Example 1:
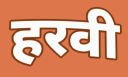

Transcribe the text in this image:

हरवी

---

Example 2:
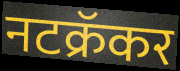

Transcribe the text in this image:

नटक्रॅकर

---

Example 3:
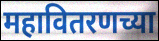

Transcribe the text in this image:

महावितरणच्या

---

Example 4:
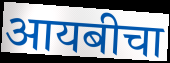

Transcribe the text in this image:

आयबीचा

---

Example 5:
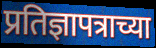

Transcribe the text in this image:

प्रतिज्ञापत्राच्या